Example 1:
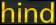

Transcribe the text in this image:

hind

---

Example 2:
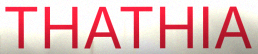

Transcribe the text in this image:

THATHIA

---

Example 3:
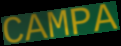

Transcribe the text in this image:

CAMPA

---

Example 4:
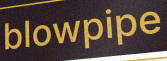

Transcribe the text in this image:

blowpipe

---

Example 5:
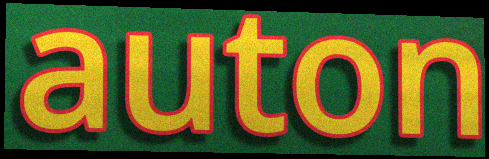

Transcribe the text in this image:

auton